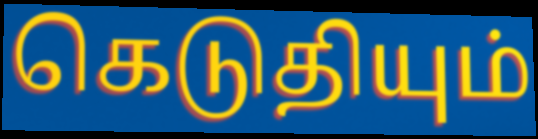
கெடுதியும்